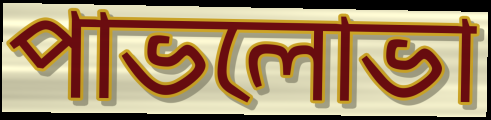
পাভলোভা